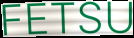
FETSU